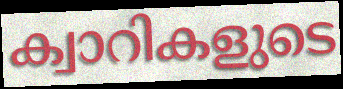
ക്വാറികളുടെ